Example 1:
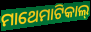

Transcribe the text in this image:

ମାଥେମାଟିକାଲ୍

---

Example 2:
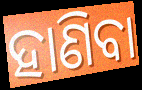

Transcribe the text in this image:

ହାଣିବା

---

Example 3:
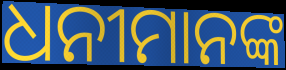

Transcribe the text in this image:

ଧନୀମାନଙ୍କ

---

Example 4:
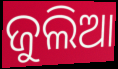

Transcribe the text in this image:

ଜୁଲିଆ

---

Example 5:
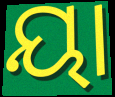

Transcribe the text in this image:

ୟା